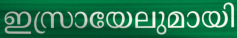
ഇസ്രായേലുമായി